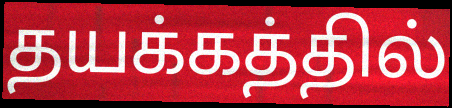
தயக்கத்தில்